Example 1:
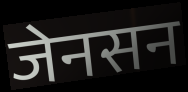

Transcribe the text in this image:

जेनसन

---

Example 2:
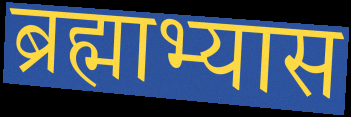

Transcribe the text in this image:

ब्रह्माभ्यास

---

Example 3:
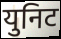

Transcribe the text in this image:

युनिट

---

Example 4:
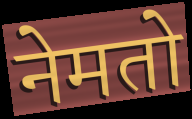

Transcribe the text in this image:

नेमतो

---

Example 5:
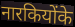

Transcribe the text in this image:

नारकियोंके